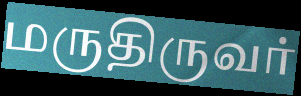
மருதிருவர்